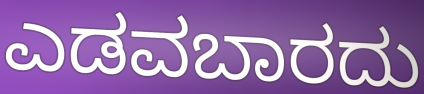
ಎಡವಬಾರದು